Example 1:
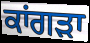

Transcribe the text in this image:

ਕਾਂਗੜਾ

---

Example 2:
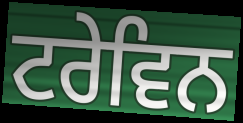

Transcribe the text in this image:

ਟਰੇਵਿਨ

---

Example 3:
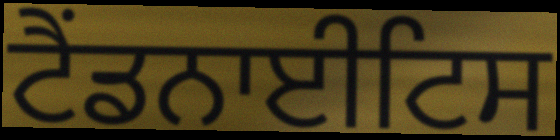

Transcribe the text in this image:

ਟੈਂਡਨਾਈਟਿਸ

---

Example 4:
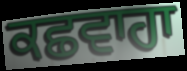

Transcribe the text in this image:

ਕਛਵਾਹਾ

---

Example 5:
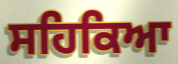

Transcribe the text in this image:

ਸਹਿਕਿਆ